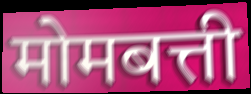
मोमबत्ती